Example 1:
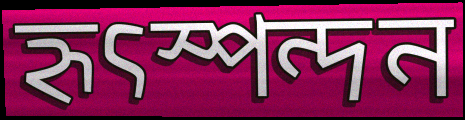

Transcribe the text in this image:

হৃৎস্পন্দন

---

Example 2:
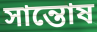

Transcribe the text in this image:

সান্তোষ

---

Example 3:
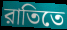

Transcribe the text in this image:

রাতিতে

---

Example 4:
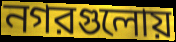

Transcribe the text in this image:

নগরগুলোয়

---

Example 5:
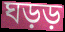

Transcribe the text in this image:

ঘড়ড়